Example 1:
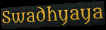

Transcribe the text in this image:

Swadhyaya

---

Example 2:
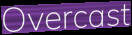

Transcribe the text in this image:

Overcast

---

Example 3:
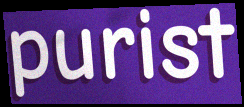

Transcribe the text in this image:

purist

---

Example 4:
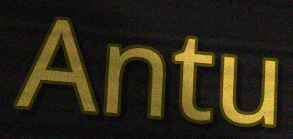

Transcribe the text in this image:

Antu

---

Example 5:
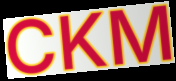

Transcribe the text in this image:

CKM